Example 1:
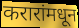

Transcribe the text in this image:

करारांमधून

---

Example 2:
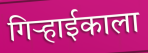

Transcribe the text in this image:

गिऱ्हाईकाला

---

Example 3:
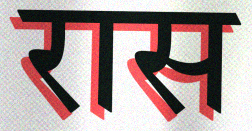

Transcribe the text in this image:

रास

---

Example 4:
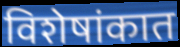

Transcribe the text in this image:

विशेषांकात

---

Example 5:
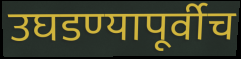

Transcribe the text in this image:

उघडण्यापूर्वीच